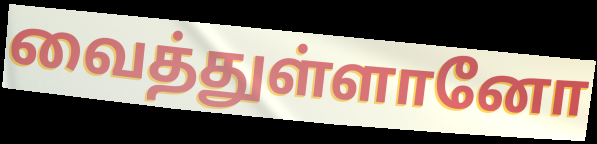
வைத்துள்ளானோ